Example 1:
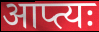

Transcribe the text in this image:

आप्त्यः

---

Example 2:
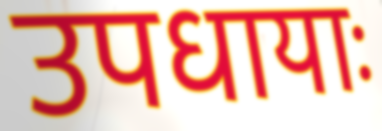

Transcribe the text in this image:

उपधायाः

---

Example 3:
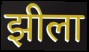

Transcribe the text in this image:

झीला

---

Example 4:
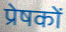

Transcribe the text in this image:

प्रेषकों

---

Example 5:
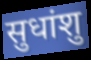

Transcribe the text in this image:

सुधांशु